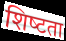
शिष्‍टता